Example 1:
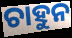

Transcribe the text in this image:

ଚାହୁନ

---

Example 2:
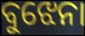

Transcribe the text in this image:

ବୁଝେନା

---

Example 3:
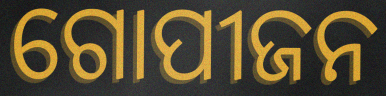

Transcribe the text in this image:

ଗୋପୀଜନ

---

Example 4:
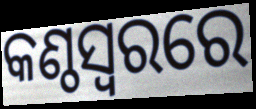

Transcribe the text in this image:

କଣ୍ଠସ୍ୱରରେ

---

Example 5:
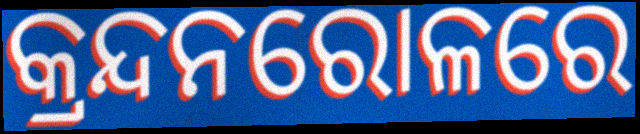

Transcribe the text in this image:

କ୍ରନ୍ଦନରୋଳରେ